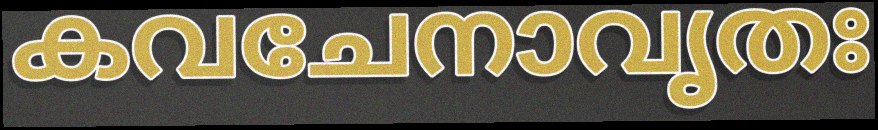
കവചേനാവൃതഃ